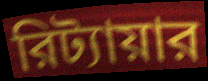
রিট্যায়ার